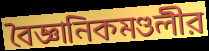
বৈজ্ঞানিকমণ্ডলীর